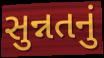
સુન્નતનું